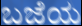
ಬಜೆಯ